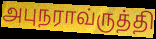
அபுநராவ்ருத்தி